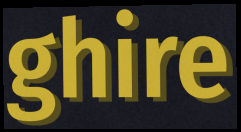
ghire